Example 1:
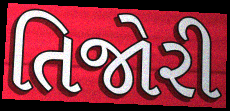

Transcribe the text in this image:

તિજોરી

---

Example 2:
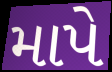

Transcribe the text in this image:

માપે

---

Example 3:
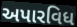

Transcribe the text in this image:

અપારવિધ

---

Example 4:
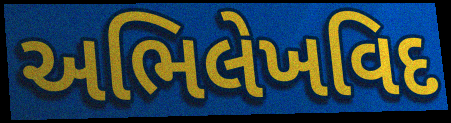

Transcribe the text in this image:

અભિલેખવિદ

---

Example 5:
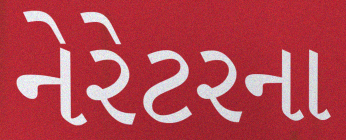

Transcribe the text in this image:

નેરેટરના